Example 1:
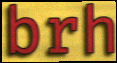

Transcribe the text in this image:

brh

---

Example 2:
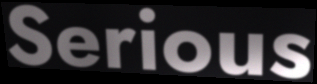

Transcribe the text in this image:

Serious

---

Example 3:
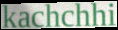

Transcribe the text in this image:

kachchhi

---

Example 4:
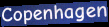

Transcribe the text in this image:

Copenhagen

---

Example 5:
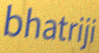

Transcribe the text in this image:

bhatriji